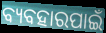
ବ୍ୟବହାରପାଇଁ